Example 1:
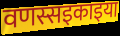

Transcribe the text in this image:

वणस्सइकाइया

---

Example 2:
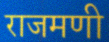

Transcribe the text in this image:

राजमणी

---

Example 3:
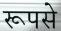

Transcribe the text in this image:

रूपसे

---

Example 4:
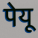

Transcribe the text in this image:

पेयू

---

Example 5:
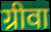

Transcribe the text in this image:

ग्रीवा